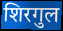
शिरगुल